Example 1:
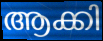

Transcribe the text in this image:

ആക്കി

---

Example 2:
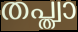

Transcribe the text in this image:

തപ്ത്വാ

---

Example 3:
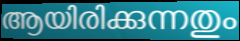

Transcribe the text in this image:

ആയിരിക്കുന്നതും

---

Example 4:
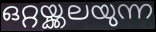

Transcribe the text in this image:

ഒറ്റയ്ക്കലയുന്ന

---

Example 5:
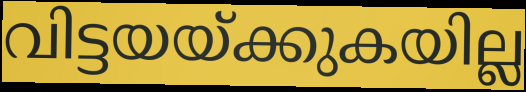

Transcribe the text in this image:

വിട്ടയയ്ക്കുകയില്ല